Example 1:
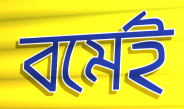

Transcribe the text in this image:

বর্মেই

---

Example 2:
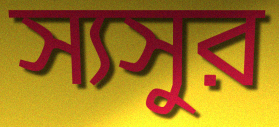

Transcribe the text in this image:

স্যসুর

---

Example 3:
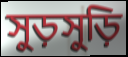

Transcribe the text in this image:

সুড়সুড়ি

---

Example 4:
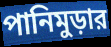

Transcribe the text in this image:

পানিমুড়ার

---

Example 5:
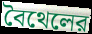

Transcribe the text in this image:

বৈথেলের